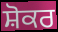
ਸ਼ੋਕਰ